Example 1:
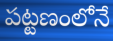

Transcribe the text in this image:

పట్టణంలోనే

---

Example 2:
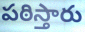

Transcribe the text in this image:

పఠిస్తారు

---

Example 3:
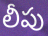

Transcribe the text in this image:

లీపు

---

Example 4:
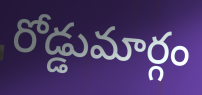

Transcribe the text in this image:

రోడ్డుమార్గం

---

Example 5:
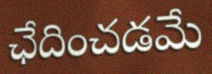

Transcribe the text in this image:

ఛేదించడమే